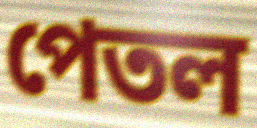
পেতল